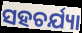
ସହଚର୍ଯ୍ୟା